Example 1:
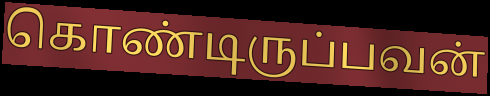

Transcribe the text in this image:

கொண்டிருப்பவன்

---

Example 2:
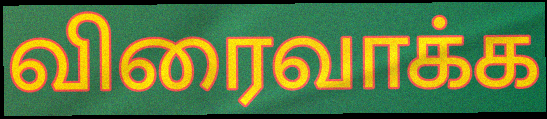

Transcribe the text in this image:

விரைவாக்க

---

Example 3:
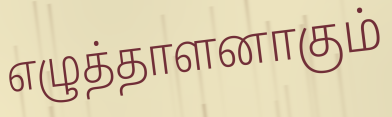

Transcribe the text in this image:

எழுத்தாளனாகும்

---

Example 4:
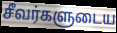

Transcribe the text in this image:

சீவர்களுடைய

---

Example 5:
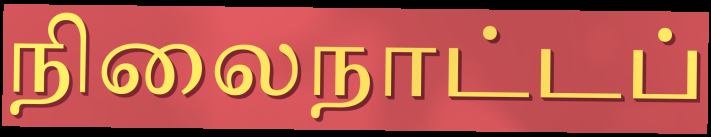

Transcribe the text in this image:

நிலைநாட்டப்